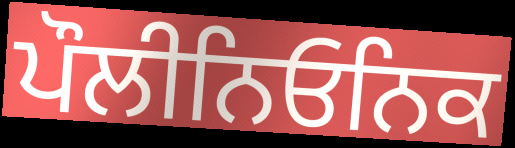
ਪੌਲੀਨਿਓਨਿਕ